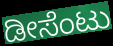
ಡೀಸೆಂಟು